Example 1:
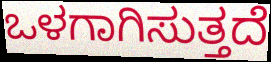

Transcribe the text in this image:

ಒಳಗಾಗಿಸುತ್ತದೆ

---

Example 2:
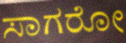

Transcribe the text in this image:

ಸಾಗರೋ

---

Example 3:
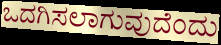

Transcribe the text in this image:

ಒದಗಿಸಲಾಗುವುದೆಂದು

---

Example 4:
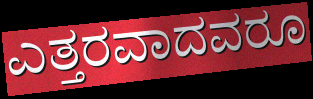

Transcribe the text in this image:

ಎತ್ತರವಾದವರೂ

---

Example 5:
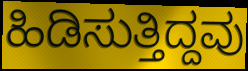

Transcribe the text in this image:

ಹಿಡಿಸುತ್ತಿದ್ದವು